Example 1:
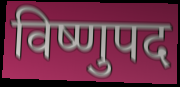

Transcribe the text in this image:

विष्णुपद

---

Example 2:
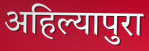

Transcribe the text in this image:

अहिल्यापुरा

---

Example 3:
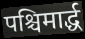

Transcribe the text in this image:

पश्चिमार्द्ध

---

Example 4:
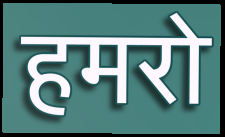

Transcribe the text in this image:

हमरो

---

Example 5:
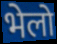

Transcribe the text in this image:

भेलो